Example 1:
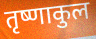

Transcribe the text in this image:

तृष्णाकुल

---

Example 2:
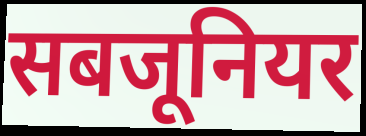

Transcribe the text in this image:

सबजूनियर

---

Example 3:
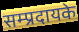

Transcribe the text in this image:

सम्प्रदायके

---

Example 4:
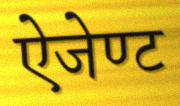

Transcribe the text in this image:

ऐजेण्ट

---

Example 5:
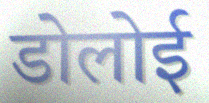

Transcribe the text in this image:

डोलोई